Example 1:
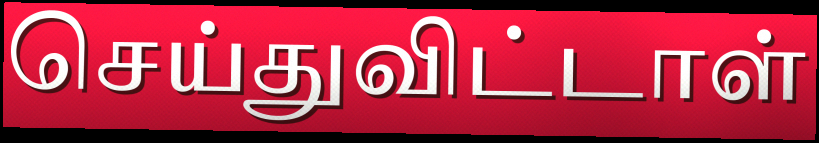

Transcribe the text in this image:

செய்துவிட்டாள்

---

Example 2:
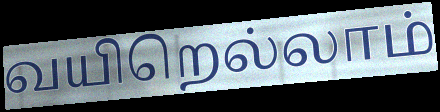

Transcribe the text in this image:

வயிறெல்லாம்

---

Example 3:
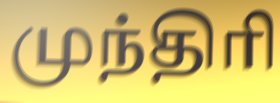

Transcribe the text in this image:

முந்திரி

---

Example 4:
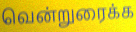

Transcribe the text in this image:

வென்றுரைக்க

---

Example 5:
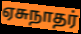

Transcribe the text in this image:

ஏசுநாதர்